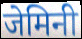
जेमिनी